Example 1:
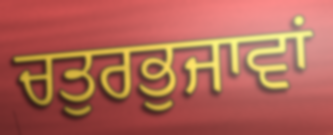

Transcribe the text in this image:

ਚਤੁਰਭੁਜਾਵਾਂ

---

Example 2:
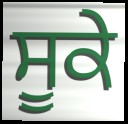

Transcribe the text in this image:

ਸੂਕੇ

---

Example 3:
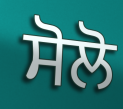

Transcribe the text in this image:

ਸੋਲੋ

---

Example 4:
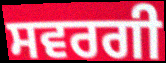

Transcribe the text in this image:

ਸਵਰਗੀ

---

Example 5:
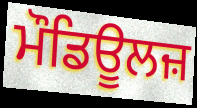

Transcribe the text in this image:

ਮੌਡਿਊਲਜ਼